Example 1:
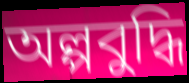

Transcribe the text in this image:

অল্পবুদ্ধি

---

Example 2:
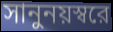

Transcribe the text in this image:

সানুনয়স্বরে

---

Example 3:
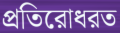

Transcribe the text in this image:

প্রতিরোধরত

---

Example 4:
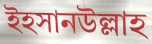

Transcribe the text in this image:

ইহসানউল্লাহ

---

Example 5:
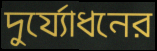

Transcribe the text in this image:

দুর্য্যোধনের